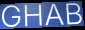
GHAB